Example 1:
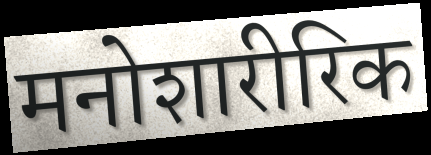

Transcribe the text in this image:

मनोशारीरिक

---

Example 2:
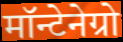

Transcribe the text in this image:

मॉन्टेनेग्रो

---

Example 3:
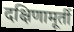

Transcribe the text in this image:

दक्षिणामूर्ती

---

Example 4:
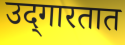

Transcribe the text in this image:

उद्‌गारतात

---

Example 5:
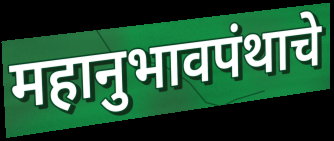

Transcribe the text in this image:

महानुभावपंथाचे